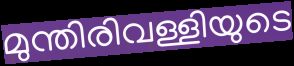
മുന്തിരിവള്ളിയുടെ